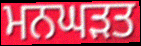
ਮਨਘੜਤ